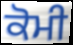
ਕੋਮੀ